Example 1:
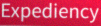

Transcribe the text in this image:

Expediency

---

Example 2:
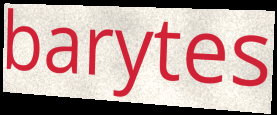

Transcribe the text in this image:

barytes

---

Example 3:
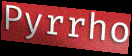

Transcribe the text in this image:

Pyrrho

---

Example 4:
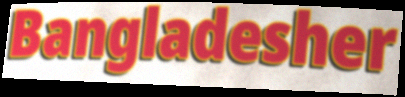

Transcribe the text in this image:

Bangladesher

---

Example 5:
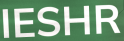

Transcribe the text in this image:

IESHR